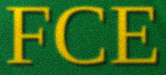
FCE